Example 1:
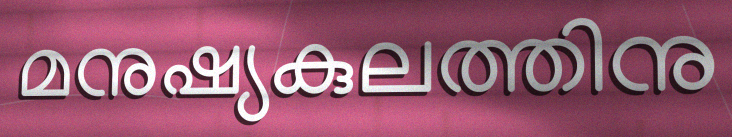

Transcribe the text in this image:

മനുഷ്യകുലത്തിനു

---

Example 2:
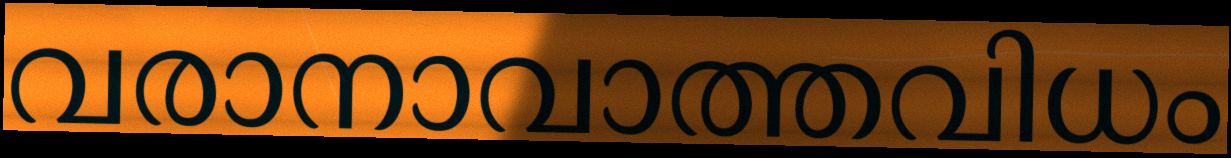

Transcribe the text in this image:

വരാനാവാത്തവിധം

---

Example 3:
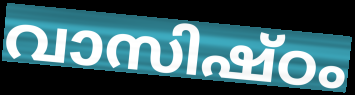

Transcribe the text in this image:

വാസിഷ്ഠം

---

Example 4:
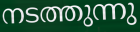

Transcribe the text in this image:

നടത്തുന്നു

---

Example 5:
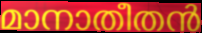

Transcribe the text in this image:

മാനാതീതൻ